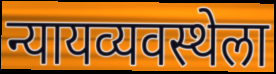
न्यायव्यवस्थेला